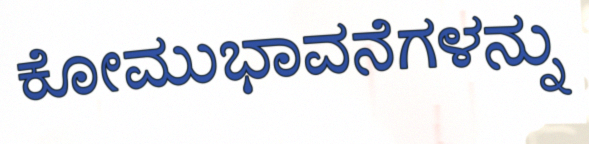
ಕೋಮುಭಾವನೆಗಳನ್ನು